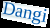
Dangi